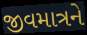
જીવમાત્રને